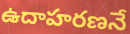
ఉదాహరణనే